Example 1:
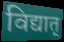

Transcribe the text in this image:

विद्यात्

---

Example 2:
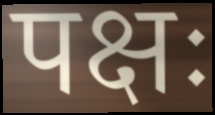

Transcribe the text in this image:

पक्षः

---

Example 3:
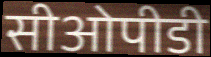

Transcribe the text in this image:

सीओपीडी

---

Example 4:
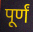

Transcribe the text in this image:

पूर्णं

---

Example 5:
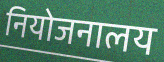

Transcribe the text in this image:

नियोजनालय